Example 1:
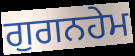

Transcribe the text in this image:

ਗੁਗਨਹੇਮ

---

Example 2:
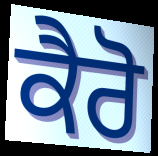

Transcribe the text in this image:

ਕੈਰੋ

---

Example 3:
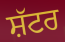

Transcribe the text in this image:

ਸ਼ੱਟਰ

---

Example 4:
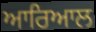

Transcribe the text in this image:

ਆਰਿਆਲ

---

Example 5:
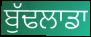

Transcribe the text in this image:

ਬੁੱਢਲਾਡਾ